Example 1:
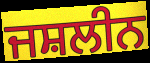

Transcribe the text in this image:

ਜਸ਼ਲੀਨ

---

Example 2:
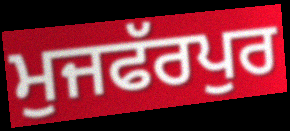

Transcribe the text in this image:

ਮੁਜਫੱਰਪੁਰ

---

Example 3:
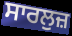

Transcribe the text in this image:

ਸਾਰਲੁਜ਼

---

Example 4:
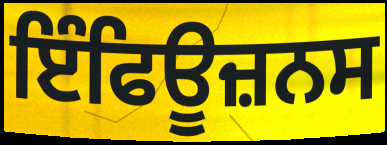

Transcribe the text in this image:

ਇੰਫਿਊਜ਼ਨਸ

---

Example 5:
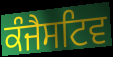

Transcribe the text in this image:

ਕੰਜੈਸਟਿਵ